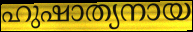
ഹുഷാത്യനായ